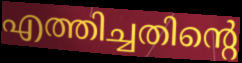
എത്തിച്ചതിന്റെ